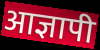
आज्ञापी